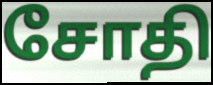
சோதி